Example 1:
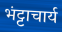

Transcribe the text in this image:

भंट्टाचार्य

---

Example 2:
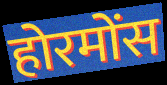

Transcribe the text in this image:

होरमोंस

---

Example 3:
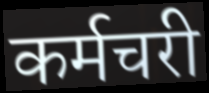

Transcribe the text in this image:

कर्मचरी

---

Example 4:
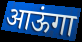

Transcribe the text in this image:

आऊंगा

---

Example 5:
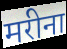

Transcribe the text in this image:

मरीना